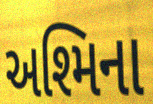
અશ્મિના